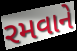
રમવાને